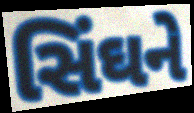
સિંઘને